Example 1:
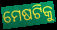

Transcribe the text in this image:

ମେଷଟିକୁ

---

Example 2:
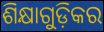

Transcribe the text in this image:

ଶିକ୍ଷାଗୁଡ଼ିକର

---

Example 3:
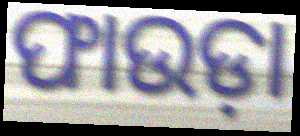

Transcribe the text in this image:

ଫାଉଡ଼ା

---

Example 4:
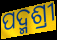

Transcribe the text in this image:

ପଦ୍ମଶ୍ରୀ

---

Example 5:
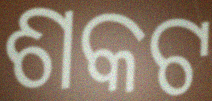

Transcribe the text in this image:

ଶକଟ